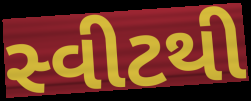
સ્વીટથી